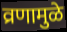
व्रणामुळे